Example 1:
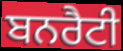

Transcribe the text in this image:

ਬਨਰੈਟੀ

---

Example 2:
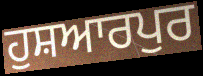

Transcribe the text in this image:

ਹੁਸ਼ਆਰਪੁਰ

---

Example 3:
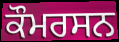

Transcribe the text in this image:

ਕੌਮਰਸਨ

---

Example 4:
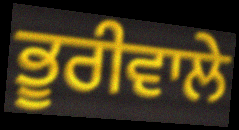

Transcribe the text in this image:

ਭੂਰੀਵਾਲੇ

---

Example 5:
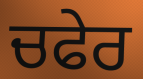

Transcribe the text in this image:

ਚਫੇਰ